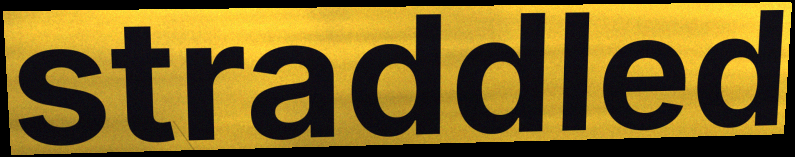
straddled